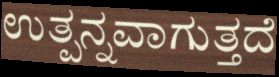
ಉತ್ಪನ್ನವಾಗುತ್ತದೆ